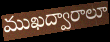
ముఖద్వారాలూ